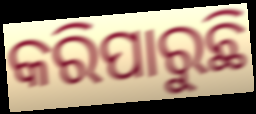
କରିପାରୁଛି